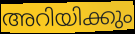
അറിയിക്കും